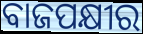
ବାଜପକ୍ଷୀର